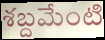
శబ్దమేంటి